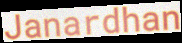
Janardhan